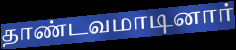
தாண்டவமாடினார்